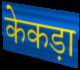
केकड़ा